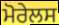
ਮੋਰੇਲਸ